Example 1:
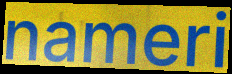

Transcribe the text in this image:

nameri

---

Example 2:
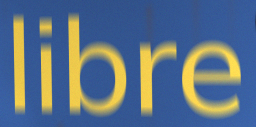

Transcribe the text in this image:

libre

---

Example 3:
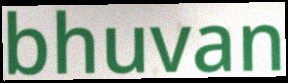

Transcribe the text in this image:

bhuvan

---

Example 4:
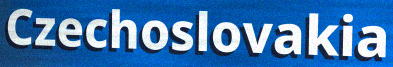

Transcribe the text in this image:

Czechoslovakia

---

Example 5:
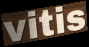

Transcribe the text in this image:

vitis